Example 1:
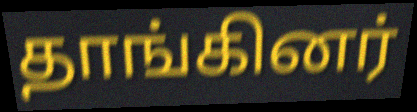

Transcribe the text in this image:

தாங்கினர்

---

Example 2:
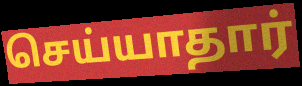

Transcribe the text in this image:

செய்யாதார்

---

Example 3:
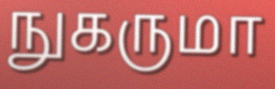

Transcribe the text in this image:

நுகருமா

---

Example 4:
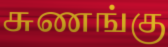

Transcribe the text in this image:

சுணங்கு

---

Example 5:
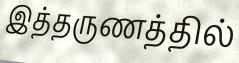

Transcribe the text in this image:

இத்தருணத்தில்